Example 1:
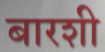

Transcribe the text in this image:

बारशी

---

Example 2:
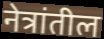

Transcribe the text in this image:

नेत्रांतील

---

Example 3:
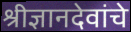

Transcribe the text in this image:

श्रीज्ञानदेवांचे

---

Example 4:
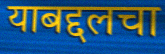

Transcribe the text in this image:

याबद्दलचा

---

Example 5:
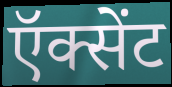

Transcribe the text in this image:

ऍक्सेंट